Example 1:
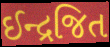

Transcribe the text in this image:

ઈન્દ્રજિત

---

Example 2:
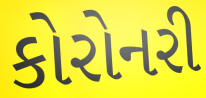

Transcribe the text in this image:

કોરોનરી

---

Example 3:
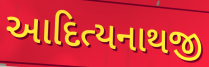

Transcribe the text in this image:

આદિત્યનાથજી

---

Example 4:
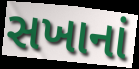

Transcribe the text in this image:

સખાનાં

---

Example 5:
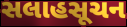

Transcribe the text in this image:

સલાહસૂચન